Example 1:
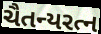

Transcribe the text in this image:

ચૈતન્યરત્ન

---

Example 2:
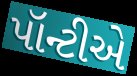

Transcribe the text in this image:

પૉન્ટીએ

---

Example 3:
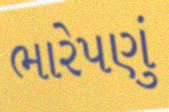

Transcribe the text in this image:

ભારેપણું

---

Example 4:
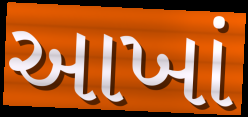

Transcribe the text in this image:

આખાં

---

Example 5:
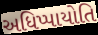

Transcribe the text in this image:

અધિપ્પાયોતિ